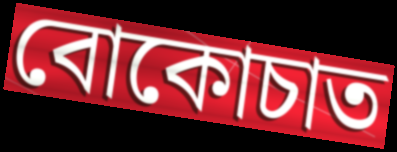
বোকোচাত